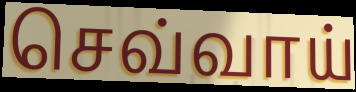
செவ்வாய்